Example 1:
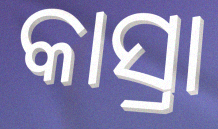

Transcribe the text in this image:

କାସ୍ରା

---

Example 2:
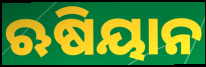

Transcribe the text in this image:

ଋଷିୟାନ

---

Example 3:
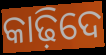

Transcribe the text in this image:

କାଢ଼ିଦେ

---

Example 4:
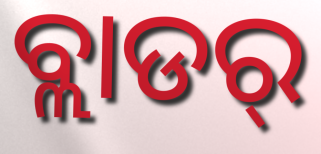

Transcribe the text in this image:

ବ୍ଲାଡର୍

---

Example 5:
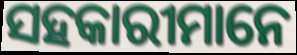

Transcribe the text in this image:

ସହକାରୀମାନେ